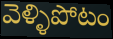
వెళ్ళిపోటం